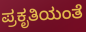
ಪ್ರಕೃತಿಯಂತೆ